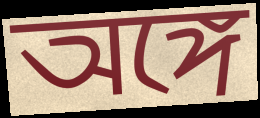
অঙ্গে